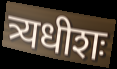
त्र्यधीशः